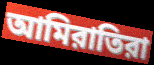
আমিরাতিরা